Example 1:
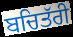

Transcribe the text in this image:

ਬਚਿਤੱਰੀ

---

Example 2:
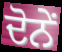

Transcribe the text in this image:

ਦੋਨੇਂ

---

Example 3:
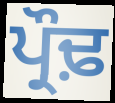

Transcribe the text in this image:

ਪ੍ਰੌਢ਼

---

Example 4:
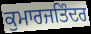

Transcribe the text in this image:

ਕੁਮਾਰਜਤਿੰਦਰ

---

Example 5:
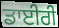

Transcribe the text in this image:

ਡਾਈਰੀ